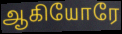
ஆகியோரே